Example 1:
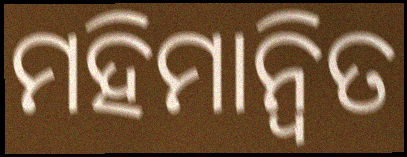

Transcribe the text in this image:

ମହିମାନ୍ଵିତ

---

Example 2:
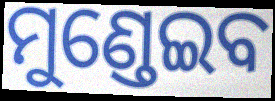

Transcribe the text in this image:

ମୁଣ୍ଡେଇବ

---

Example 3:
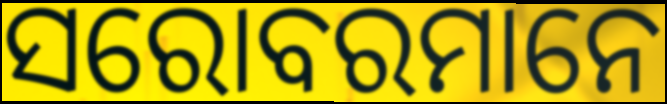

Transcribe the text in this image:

ସରୋବରମାନେ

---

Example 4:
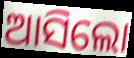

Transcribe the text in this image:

ଆସିଲୋ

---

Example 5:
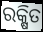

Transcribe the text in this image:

ରକ୍ଷିତ